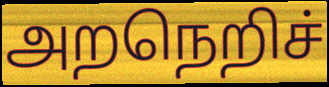
அறநெறிச்